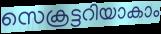
സെക്രട്ടറിയാകാം